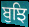
ਬੁਝਿ